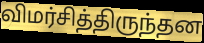
விமர்சித்திருந்தன